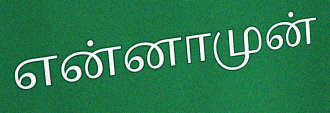
என்னாமுன்